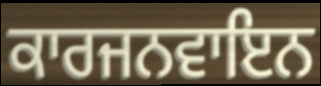
ਕਾਰਜਨਵਾਇਨ